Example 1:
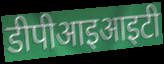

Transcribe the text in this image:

डीपीआइआइटी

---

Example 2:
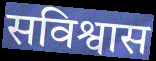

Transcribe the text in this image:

सविश्वास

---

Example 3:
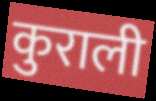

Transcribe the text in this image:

कुराली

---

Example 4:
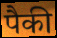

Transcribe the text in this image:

पैकी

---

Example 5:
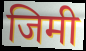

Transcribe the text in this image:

जिमी